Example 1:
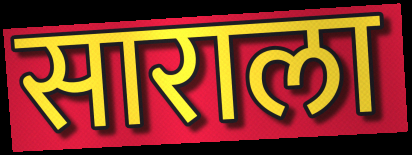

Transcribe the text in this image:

साराला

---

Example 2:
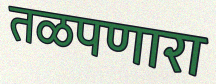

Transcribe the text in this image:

तळपणारा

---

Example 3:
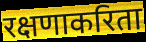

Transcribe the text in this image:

रक्षणाकरिता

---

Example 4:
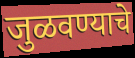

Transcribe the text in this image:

जुळवण्याचे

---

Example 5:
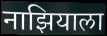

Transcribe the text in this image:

नाझियाला